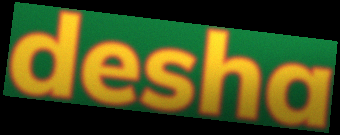
desha